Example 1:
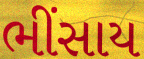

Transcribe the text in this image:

ભીંસાય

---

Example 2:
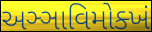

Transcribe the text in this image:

અઞ્ઞાવિમોક્ખં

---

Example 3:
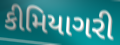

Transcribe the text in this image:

કીમિયાગરી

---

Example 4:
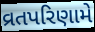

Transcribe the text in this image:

વ્રતપરિણામે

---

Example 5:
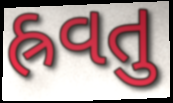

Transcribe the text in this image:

હ્રવતુ